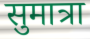
सुमात्रा